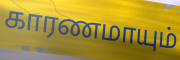
காரணமாயும்